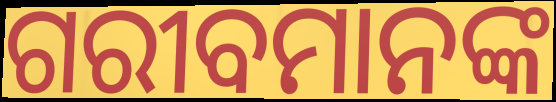
ଗରୀବମାନଙ୍କ